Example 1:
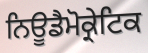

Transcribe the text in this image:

ਨਿਊਡੈਮੋਕ੍ਰੇਟਿਕ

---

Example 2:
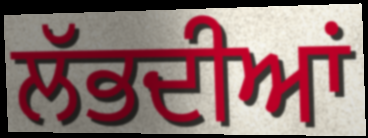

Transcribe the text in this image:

ਲੱਭਦੀਆਂ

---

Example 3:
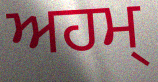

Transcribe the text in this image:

ਅਹਮ੍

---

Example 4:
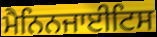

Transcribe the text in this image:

ਮੈਨਿਨਜਾਈਟਿਸ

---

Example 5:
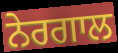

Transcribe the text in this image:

ਨੇਰਗਾਲ